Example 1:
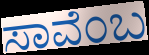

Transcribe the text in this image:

ಸಾವೆಂಬ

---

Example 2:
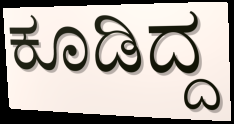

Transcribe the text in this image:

ಕೂಡಿದ್ದ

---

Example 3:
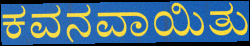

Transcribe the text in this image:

ಕವನವಾಯಿತು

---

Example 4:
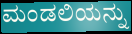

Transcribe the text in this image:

ಮಂಡಲಿಯನ್ನು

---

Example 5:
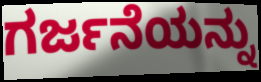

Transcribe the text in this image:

ಗರ್ಜನೆಯನ್ನು